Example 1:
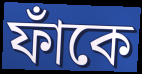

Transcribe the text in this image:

ফাঁকে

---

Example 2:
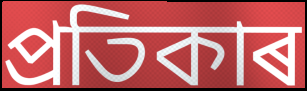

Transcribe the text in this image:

প্ৰতিকাৰ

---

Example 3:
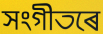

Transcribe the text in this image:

সংগীতৰে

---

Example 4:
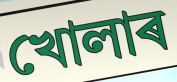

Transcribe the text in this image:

খোলাৰ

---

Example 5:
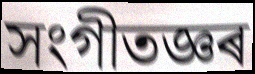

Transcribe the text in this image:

সংগীতজ্ঞৰ